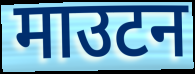
माउटन